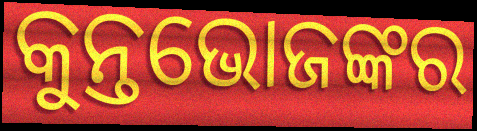
କୁନ୍ତଭୋଜଙ୍କର